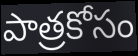
పాత్రకోసం